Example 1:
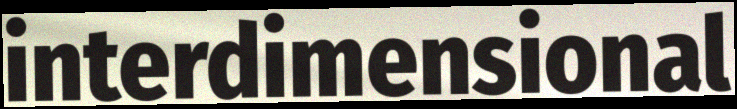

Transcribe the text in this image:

interdimensional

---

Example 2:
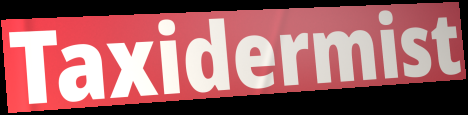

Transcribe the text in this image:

Taxidermist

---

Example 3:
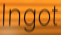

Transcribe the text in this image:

Ingot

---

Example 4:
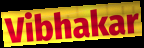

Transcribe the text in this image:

Vibhakar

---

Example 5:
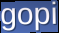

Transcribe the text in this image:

gopi